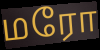
மரோ